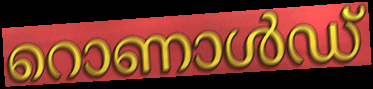
റൊണാൾഡ്